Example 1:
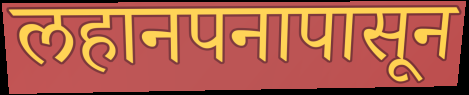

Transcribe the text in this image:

लहानपनापासून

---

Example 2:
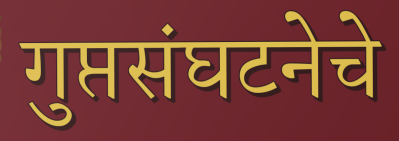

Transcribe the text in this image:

गुप्तसंघटनेचे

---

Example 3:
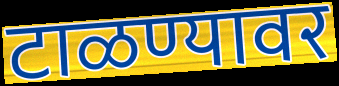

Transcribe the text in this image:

टाळण्यावर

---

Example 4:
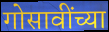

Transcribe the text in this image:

गोसावींच्या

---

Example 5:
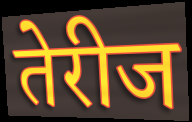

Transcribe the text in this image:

तेरीज